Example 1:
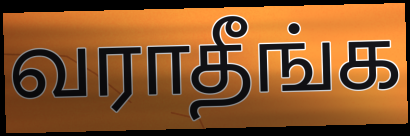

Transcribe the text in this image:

வராதீங்க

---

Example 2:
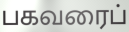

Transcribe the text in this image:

பகவரைப்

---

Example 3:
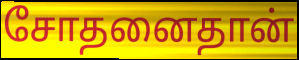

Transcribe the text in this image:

சோதனைதான்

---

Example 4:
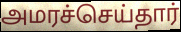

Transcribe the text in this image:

அமரச்செய்தார்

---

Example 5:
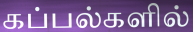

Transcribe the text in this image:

கப்பல்களில்